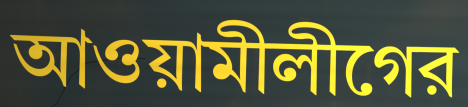
আওয়ামীলীগের